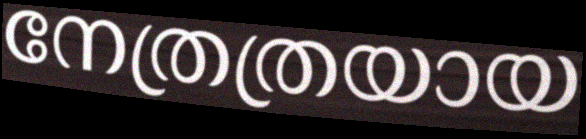
നേത്രത്രയായ